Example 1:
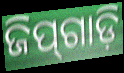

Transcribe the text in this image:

ଜିପ୍‍ଗାଡ଼ି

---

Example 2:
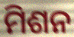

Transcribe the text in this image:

ମିଶନ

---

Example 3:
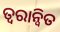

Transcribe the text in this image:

ତ୍ୱରାନ୍ୱିତ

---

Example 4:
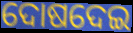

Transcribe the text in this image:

ଦୋଷଦେଇ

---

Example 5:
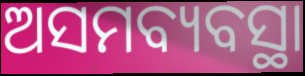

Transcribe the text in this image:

ଅସମବ୍ୟବସ୍ଥା